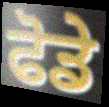
ਫੋਡੇ